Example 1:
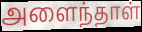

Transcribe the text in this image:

அளைந்தாள்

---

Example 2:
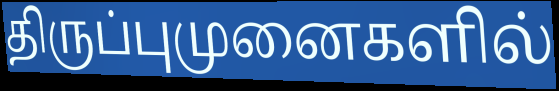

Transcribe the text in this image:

திருப்புமுனைகளில்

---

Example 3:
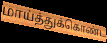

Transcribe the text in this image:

மாய்த்துக்கொண்ட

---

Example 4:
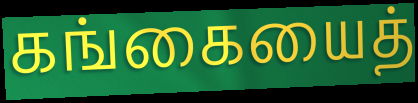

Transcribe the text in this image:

கங்கையைத்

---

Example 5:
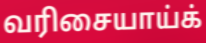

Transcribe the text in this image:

வரிசையாய்க்